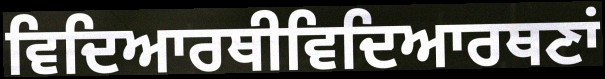
ਵਿਦਿਆਰਥੀਵਿਦਿਆਰਥਣਾਂ